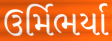
ઉર્મિભર્યા